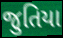
જુતિયા